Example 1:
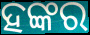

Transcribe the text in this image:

ହଙ୍କର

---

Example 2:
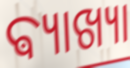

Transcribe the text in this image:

ଵ୍ୟାଖ୍ୟା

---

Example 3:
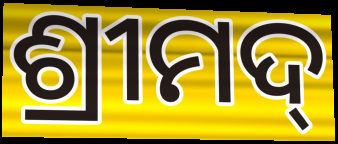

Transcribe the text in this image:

ଶ୍ରୀମଦ୍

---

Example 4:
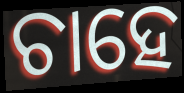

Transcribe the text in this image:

ଚାହେ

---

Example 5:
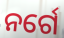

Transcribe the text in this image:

ନର୍ଗେ